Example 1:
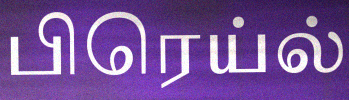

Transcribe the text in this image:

பிரெய்ல்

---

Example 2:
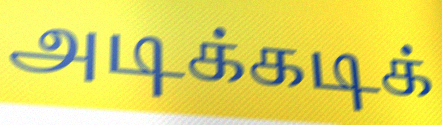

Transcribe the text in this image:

அடிக்கடிக்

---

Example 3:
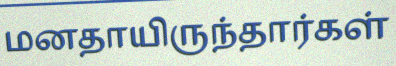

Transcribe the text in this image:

மனதாயிருந்தார்கள்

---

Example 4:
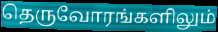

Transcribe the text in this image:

தெருவோரங்களிலும்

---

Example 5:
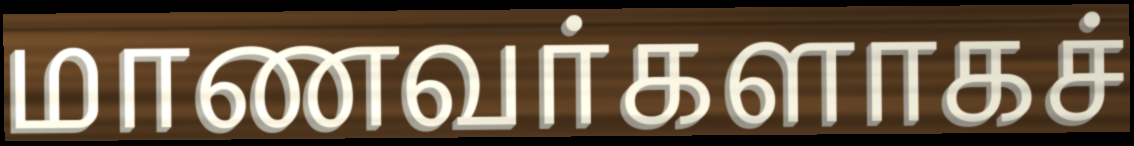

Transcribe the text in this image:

மாணவர்களாகச்